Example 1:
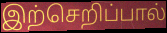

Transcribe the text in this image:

இற்செறிப்பால்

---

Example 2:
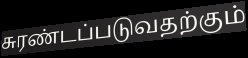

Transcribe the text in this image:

சுரண்டப்படுவதற்கும்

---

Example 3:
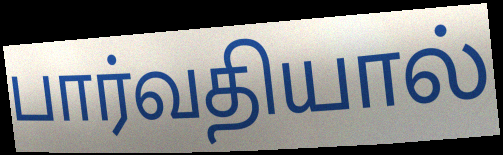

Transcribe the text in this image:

பார்வதியால்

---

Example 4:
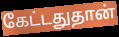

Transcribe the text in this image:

கேட்டதுதான்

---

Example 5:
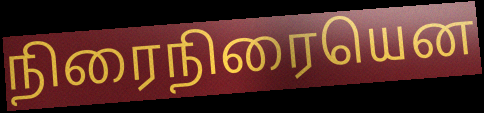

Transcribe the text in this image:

நிரைநிரையென